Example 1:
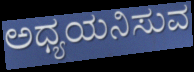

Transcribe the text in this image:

ಅಧ್ಯಯನಿಸುವ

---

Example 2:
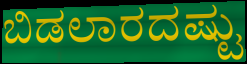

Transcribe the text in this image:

ಬಿಡಲಾರದಷ್ಟು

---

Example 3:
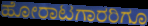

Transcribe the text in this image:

ಹೋರಾಟಗಾರರಿಗೂ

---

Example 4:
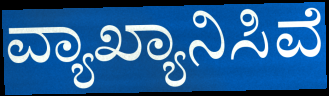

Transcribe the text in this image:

ವ್ಯಾಖ್ಯಾನಿಸಿವೆ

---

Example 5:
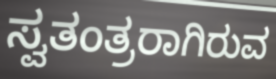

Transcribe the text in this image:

ಸ್ವತಂತ್ರರಾಗಿರುವ